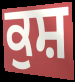
ਕੁਸ਼